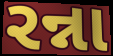
રન્ના